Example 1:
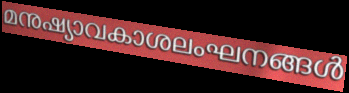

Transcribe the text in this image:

മനുഷ്യാവകാശലംഘനങ്ങൾ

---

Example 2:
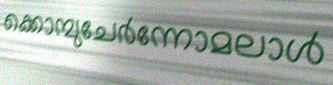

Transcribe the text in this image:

ക്കൊമ്പുചേർന്നോമലാൾ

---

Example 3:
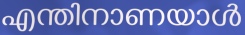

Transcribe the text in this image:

എന്തിനാണയാൾ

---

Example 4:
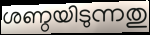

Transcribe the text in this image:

ശണ്ഠയിടുന്നതു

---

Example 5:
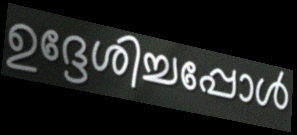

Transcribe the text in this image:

ഉദ്ദേശിച്ചപ്പോൾ